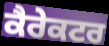
ਕੈਰੇਕਟਰ